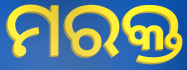
ମରକ୍ତ